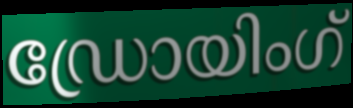
ഡ്രോയിംഗ്